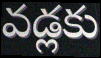
వడ్లకు